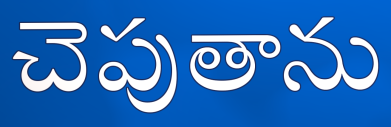
చెపుతాను